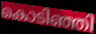
കൊടിഞ്ഞി